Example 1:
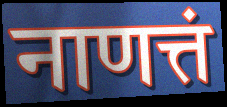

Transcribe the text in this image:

नाणत्तं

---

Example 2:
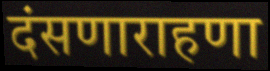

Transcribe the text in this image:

दंसणाराहणा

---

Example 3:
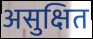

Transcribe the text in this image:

असुक्षित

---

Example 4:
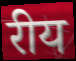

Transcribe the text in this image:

रीय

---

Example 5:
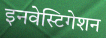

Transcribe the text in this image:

इनवेस्टिगेशन